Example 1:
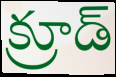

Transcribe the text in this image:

క్రూడ్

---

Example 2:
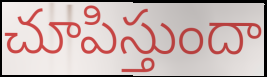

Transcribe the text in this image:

చూపిస్తుందా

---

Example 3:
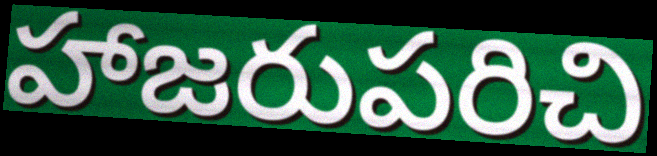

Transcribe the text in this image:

హాజరుపరిచి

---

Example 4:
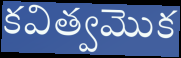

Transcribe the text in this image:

కవిత్వమొక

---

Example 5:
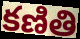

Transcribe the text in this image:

కణితి